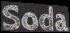
Soda